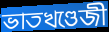
ভাতখণ্ডেজী